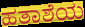
ಹತಾಶೆಯ